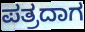
ಪತ್ರದಾಗ